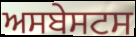
ਅਸਬੇਸਟਸ